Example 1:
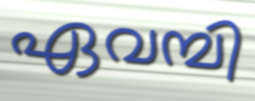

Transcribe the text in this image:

ഏവമ്പി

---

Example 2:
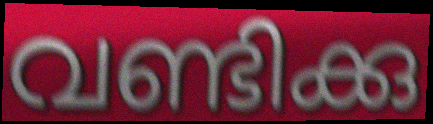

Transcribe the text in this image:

വണ്ടിക്കു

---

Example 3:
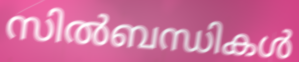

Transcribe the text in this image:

സിൽബന്ധികൾ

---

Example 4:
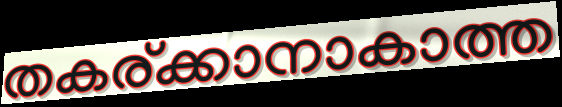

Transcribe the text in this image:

തകര്ക്കാനാകാത്ത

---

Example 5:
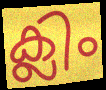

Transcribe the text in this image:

ക്ലിം